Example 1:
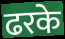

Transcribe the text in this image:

ढरके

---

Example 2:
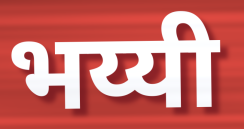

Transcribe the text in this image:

भय्यी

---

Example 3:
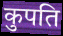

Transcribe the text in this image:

कुपति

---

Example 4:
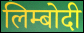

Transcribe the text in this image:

लिम्बोदी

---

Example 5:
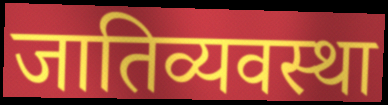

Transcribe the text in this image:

जातिव्यवस्था